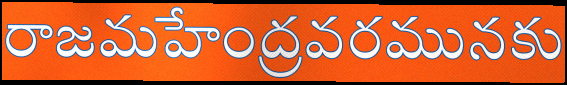
రాజమహేంద్రవరమునకు